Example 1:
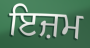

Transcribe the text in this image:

ਇਜ਼ਮ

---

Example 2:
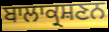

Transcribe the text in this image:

ਬਾਲਾਕ੍ਰਸ਼ਣਨ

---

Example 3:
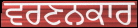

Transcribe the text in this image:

ਵਰਣਨਕਾਰ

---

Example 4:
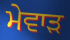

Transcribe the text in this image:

ਮੇਵਾੜ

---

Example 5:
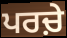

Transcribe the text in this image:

ਪਰਚ਼ੇ